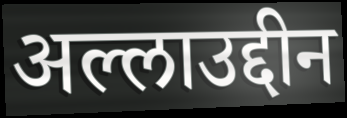
अल्लाउद्दीन